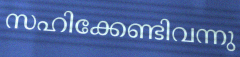
സഹിക്കേണ്ടിവന്നു